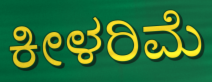
ಕೀಳರಿಮೆ